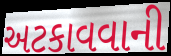
અટકાવવાની